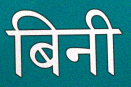
बिनी